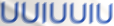
UUIUUIU